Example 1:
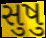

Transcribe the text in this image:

સુષુ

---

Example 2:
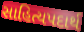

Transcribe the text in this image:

સાહિત્યપદાર્થ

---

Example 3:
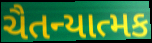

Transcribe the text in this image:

ચૈતન્યાત્મક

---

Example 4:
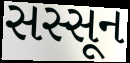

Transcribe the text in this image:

સસ્સૂન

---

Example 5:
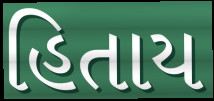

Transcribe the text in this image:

હિતાય